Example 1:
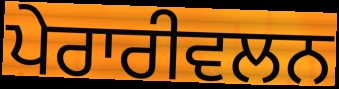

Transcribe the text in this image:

ਪੇਰਾਰੀਵਲਨ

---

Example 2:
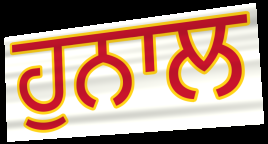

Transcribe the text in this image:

ਹੁਨਾਲ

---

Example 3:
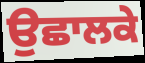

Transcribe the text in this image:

ਉਛਾਲਕੇ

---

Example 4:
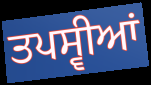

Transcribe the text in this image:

ਤਪਸ੍ਵੀਆਂ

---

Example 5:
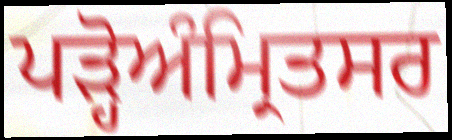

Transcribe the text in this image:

ਪੜ੍ਹੋਅੰਮ੍ਰਿਤਸਰ